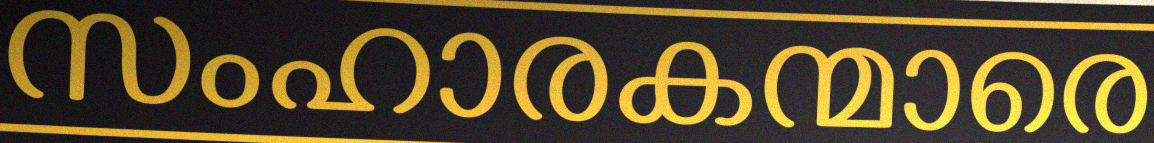
സംഹാരകന്മാരെ